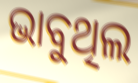
ଭାବୁଥିଲ